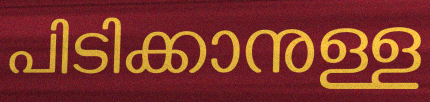
പിടിക്കാനുള്ള